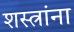
शस्त्रांना